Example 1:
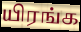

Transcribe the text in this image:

யிரங்க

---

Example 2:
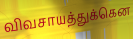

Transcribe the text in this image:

விவசாயத்துக்கென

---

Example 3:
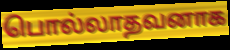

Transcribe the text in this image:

பொல்லாதவனாக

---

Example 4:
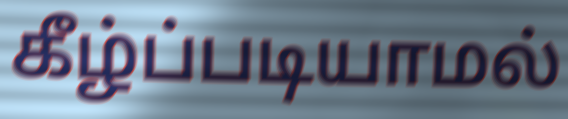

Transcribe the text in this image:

கீழ்ப்படியாமல்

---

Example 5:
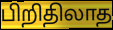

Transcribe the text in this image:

பிறிதிலாத